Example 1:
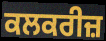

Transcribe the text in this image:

ਕਲਕਰੀਜ਼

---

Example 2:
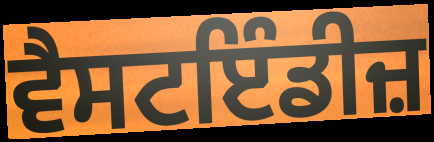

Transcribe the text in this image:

ਵੈਸਟਇੰਡੀਜ਼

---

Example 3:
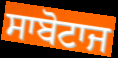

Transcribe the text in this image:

ਸਾਬੋਟਾਜ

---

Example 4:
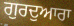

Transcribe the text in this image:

ਗੁਰਦੁਆਰਾ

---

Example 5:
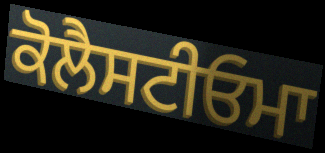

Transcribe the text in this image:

ਕੋਲੈਸਟੀਓਮਾ